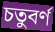
চতুবৰ্ণ